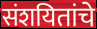
संशयितांचे